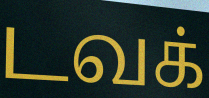
டவக்